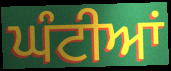
ਘੰਟੀਆਂ